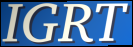
IGRT